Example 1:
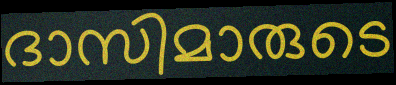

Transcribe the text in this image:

ദാസിമാരുടെ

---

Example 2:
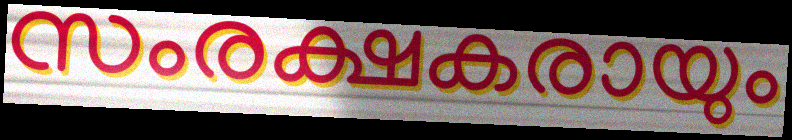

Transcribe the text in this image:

സംരക്ഷകരായും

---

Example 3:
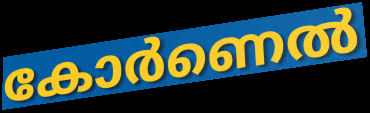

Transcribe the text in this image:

കോർണെൽ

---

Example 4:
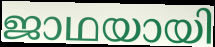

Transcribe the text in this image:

ജാഥയായി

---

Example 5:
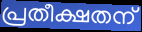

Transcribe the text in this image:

പ്രതീക്ഷതന്